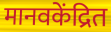
मानवकेंद्रित